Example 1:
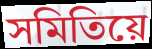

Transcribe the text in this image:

সমিতিয়ে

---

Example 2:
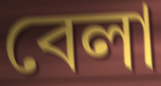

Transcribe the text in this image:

বেলা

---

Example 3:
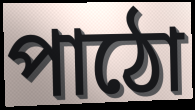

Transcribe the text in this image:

পাঠো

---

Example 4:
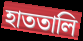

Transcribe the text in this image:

হাততালি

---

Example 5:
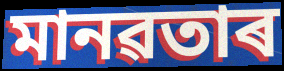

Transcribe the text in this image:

মানৱতাৰ